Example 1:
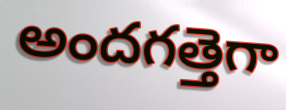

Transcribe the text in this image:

అందగత్తెగా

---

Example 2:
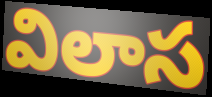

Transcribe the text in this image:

విలాస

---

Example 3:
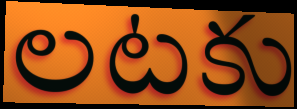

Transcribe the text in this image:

లటకు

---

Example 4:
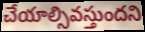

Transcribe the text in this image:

చేయాల్సివస్తుందని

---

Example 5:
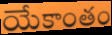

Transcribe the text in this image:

యేకాంతం